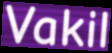
Vakil